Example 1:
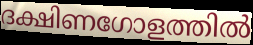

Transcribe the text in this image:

ദക്ഷിണഗോളത്തിൽ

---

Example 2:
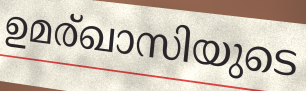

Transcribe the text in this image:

ഉമര്ഖാസിയുടെ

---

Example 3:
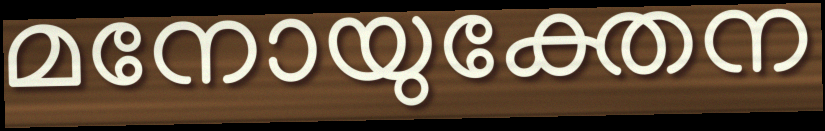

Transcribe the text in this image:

മനോയുക്തേന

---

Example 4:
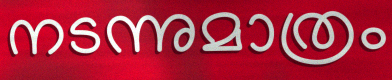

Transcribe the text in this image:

നടന്നുമാത്രം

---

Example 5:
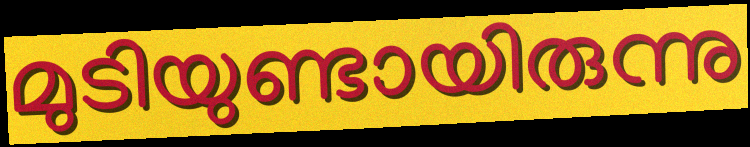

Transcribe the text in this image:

മുടിയുണ്ടായിരുന്നു